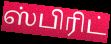
ஸ்பிரிட்